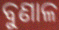
ବୁଣାଳ